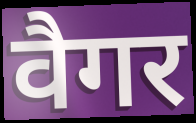
वैगर